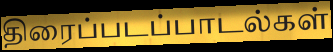
திரைப்படப்பாடல்கள்